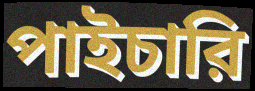
পাইচারি